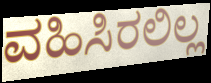
ವಹಿಸಿರಲಿಲ್ಲ